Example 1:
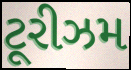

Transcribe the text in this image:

ટૂરીઝમ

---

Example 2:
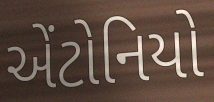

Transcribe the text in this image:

એંટોનિયો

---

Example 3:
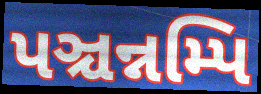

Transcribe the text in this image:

પઞ્ચન્નમ્પિ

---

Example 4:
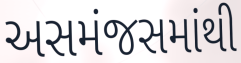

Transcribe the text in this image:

અસમંજસમાંથી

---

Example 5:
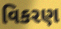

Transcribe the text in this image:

વિકરણ